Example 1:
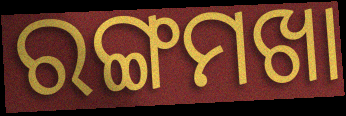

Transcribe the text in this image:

ରଙ୍ଗମଖା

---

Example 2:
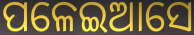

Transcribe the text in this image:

ପଳେଇଆସେ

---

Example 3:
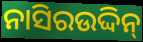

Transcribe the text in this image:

ନାସିରଉଦ୍ଦିନ୍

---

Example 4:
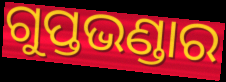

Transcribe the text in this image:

ଗୁପ୍ତଭଣ୍ଡାର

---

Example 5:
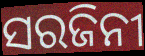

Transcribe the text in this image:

ସରଜିନୀ